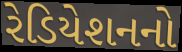
રેડિયેશનનો